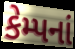
કેમ્પનાં